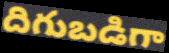
దిగుబడిగా